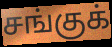
சங்குக்